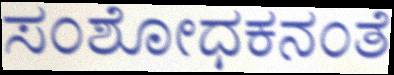
ಸಂಶೋಧಕನಂತೆ